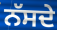
ਨੱਸਦੇ